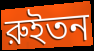
রুইতন